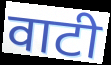
वाटी